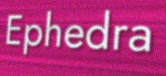
Ephedra